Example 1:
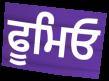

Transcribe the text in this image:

ਫੂਮਿਓ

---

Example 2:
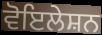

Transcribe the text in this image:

ਵੋਇਲੇਸ਼ਨ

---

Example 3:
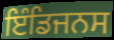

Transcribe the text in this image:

ਇੰਡਿਜਨਸ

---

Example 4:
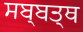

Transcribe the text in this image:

ਸਬ੍ਬਤ੍ਥ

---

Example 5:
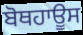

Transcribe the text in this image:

ਬੋਥਹਾਊਸ